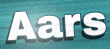
Aars